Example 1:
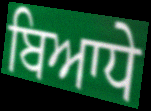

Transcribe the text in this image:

ਬਿਆਧੇ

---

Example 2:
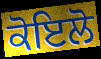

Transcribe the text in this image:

ਕੋਇਲੋ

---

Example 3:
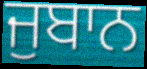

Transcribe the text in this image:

ਜੁਬਾਨ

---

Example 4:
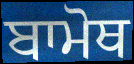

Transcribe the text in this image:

ਬਾਮੋਥ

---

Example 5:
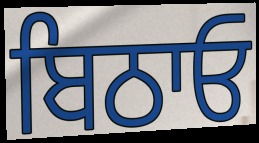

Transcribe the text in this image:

ਬਿਠਾਓ